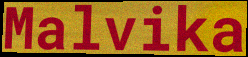
Malvika